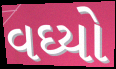
વઘ્યો